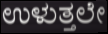
ಉಳುತ್ತಲೇ